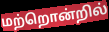
மற்றொன்றில்